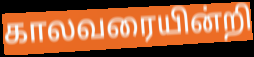
காலவரையின்றி